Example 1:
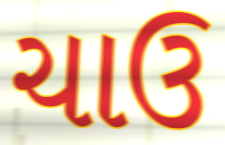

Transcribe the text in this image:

ચાઉ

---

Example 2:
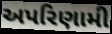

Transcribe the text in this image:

અપરિણામી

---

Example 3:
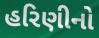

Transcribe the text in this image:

હરિણીનો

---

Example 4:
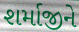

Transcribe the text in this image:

શર્માજીને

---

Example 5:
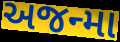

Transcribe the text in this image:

અજન્મા